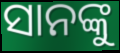
ସାନଙ୍କୁ